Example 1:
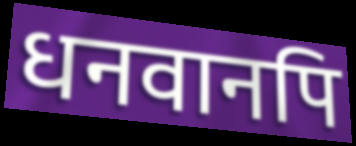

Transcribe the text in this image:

धनवानपि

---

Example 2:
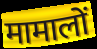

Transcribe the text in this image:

मामालों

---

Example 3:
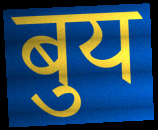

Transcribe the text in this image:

बुय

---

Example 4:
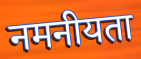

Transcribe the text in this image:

नमनीयता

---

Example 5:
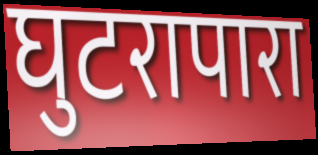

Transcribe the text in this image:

घुटरापारा